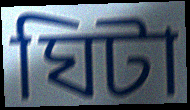
ঘিটা